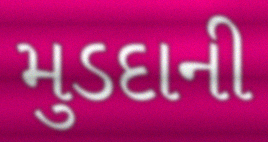
મુડદાની